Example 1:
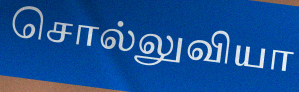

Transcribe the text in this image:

சொல்லுவியா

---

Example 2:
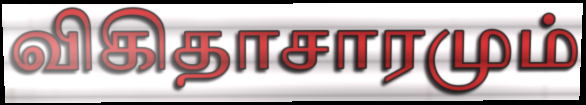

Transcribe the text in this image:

விகிதாசாரமும்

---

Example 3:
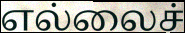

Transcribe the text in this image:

எல்லைச்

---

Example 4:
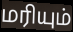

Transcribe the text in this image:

மரியும்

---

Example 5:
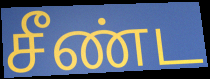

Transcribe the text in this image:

சீண்ட